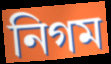
নিগম